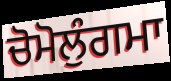
ਚੋਮੋਲੁੰਗਮਾ